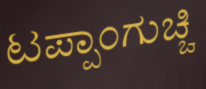
ಟಪ್ಪಾಂಗುಚ್ಚಿ